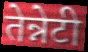
तेन्नेटी